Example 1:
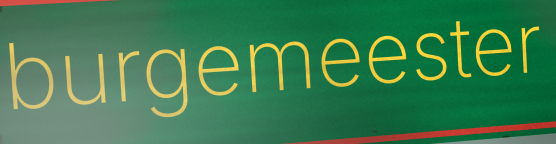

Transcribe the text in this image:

burgemeester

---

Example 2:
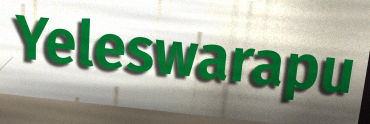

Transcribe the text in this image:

Yeleswarapu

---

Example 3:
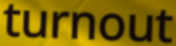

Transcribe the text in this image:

turnout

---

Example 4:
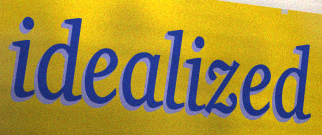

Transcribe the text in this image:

idealized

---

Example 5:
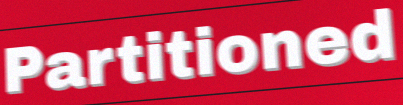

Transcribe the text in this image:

Partitioned